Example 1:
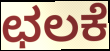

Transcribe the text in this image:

ಛಲಕೆ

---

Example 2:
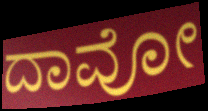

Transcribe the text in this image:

ದಾವೋ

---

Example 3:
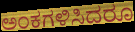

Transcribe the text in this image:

ಅಂಕಗಳಿಸಿದರೂ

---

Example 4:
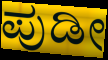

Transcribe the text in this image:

ಪುಡೀ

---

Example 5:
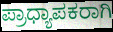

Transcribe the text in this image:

ಪ್ರಾಧ್ಯಾಪಕರಾಗಿ